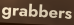
grabbers